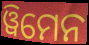
ୱିମେନ